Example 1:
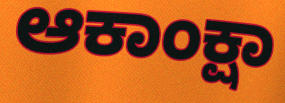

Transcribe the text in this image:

ಆಕಾಂಕ್ಷಾ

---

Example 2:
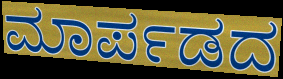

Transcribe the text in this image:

ಮಾರ್ಪಡದ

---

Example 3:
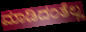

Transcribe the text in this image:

ಮಾಡಿದಂತೆಲ್ಲ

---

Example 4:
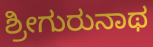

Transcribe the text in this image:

ಶ್ರೀಗುರುನಾಥ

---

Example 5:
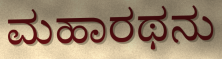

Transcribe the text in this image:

ಮಹಾರಥನು